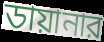
ডায়ানার